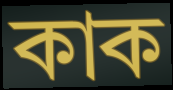
কাক